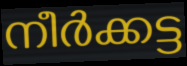
നീർക്കട്ട